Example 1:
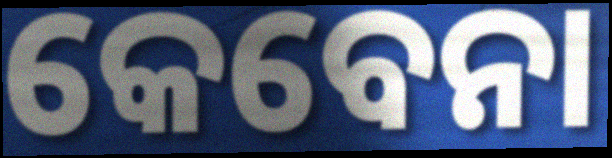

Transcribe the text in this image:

କେବେନା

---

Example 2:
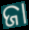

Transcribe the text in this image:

ଜା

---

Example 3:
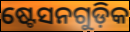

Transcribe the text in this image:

ଷ୍ଟେସନଗୁଡ଼ିକ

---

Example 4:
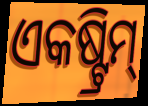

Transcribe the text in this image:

ଏକଷ୍ଟ୍ରିମ୍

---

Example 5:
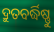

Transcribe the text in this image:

ଦ୍ରୁତବର୍ଦ୍ଧିଷ୍ଣୁ